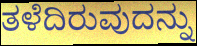
ತಳೆದಿರುವುದನ್ನು